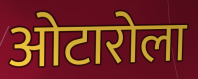
ओटारोला